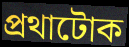
প্ৰথাটোক